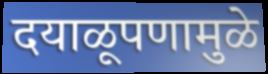
दयाळूपणामुळे